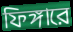
ফিঙ্গারে